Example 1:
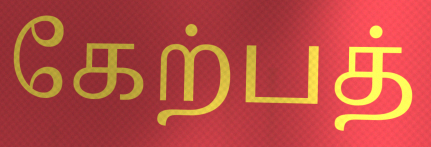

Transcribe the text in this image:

கேற்பத்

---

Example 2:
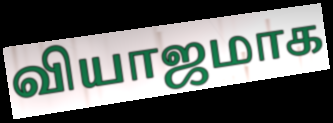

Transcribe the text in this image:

வியாஜமாக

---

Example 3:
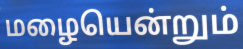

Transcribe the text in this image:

மழையென்றும்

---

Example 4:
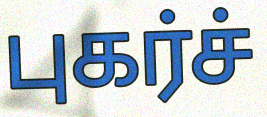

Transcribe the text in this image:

புகர்ச்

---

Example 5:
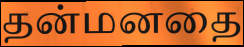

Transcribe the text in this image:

தன்மனதை